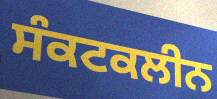
ਸੰਕਟਕਲੀਨ